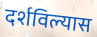
दर्शविल्यास